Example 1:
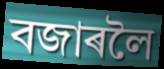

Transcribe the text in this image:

বজাৰলৈ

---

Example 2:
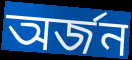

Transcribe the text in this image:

অৰ্জন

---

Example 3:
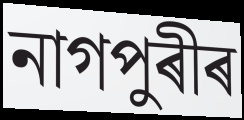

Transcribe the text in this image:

নাগপুৰীৰ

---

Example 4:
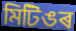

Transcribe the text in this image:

মিটিঙৰ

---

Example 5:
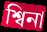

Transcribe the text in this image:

শ্বিনা